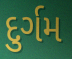
દુર્ગમ